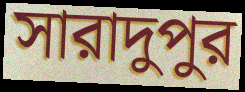
সারাদুপুর